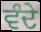
ਵੰਦੇ